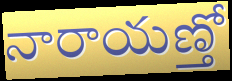
నారాయణ్తో